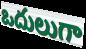
ఒదులుగా